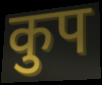
कुप